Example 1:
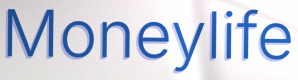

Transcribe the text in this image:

Moneylife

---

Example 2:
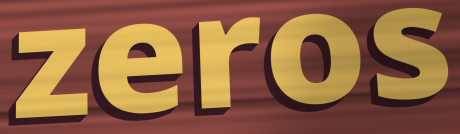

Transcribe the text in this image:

zeros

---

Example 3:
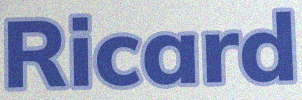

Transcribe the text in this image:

Ricard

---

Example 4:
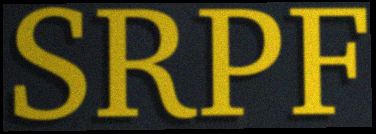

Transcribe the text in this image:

SRPF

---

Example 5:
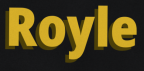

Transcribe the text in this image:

Royle